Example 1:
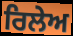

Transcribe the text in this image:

ਰਿਲੇਅ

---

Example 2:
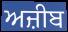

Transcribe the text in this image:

ਅਜ਼ੀਬ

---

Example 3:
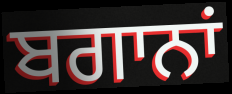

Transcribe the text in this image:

ਬਗਾਨਾਂ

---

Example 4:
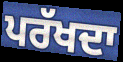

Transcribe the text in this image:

ਪਰੱਖਦਾ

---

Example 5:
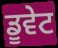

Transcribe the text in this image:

ਡੂਵੇਟ